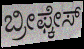
ಬ್ರೀಫ್ಕೇಸ್